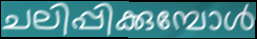
ചലിപ്പിക്കുമ്പോൾ